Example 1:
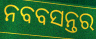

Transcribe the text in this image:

ନବବସନ୍ତର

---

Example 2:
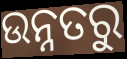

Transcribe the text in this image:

ଉନ୍ନତରୁ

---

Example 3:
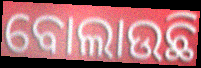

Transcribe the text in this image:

ବୋଲାଉଛି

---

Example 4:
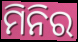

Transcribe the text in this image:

ମିନିର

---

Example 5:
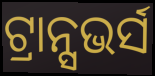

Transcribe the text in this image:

ଟ୍ରାନ୍ସଭର୍ସ